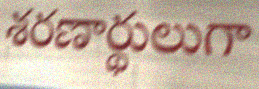
శరణార్థులుగా